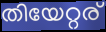
തിയേറ്റര്